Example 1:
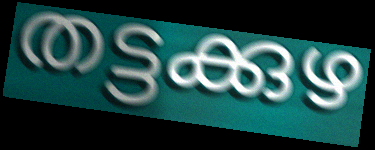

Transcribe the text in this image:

തട്ടക്കുഴ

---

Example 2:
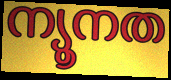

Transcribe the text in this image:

ന്യൂനത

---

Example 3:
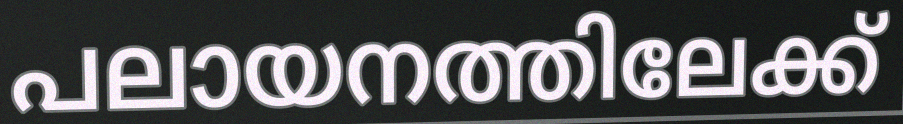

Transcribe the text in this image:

പലായനത്തിലേക്ക്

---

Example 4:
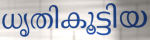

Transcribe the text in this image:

ധൃതികൂട്ടിയ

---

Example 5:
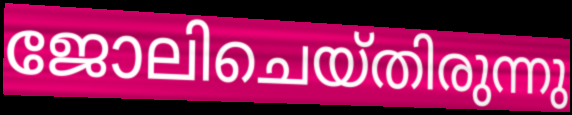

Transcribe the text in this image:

ജോലിചെയ്തിരുന്നു